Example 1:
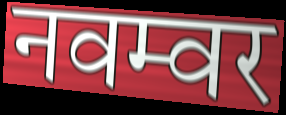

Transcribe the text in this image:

नवम्वर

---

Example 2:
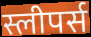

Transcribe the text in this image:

स्लीपर्स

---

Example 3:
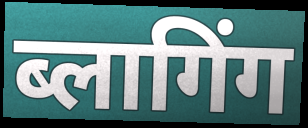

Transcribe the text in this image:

ब्लागिंग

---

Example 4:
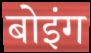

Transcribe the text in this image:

बोइंग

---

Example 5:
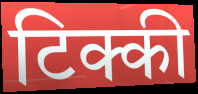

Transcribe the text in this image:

टिक्की